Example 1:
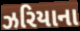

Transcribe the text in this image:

ઝરિયાના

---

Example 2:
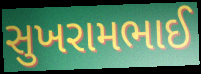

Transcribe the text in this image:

સુખરામભાઈ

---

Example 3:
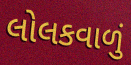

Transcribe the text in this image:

લોલકવાળું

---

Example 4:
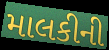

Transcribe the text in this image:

માલકીની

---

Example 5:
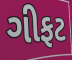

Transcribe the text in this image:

ગીફટ